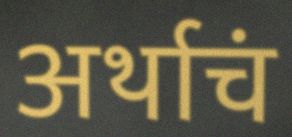
अर्थाचं